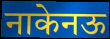
नाकेनऊ